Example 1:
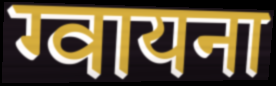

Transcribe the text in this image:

ग्वायना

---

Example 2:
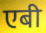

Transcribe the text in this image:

एबी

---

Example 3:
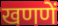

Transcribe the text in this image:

खणणें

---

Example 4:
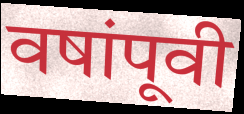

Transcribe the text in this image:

वषांपूवी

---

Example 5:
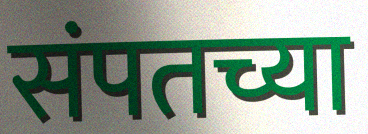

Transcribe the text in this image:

संपतच्या